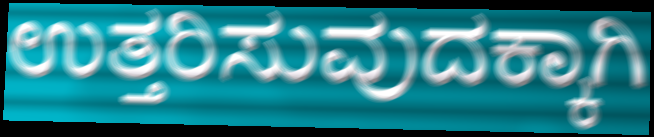
ಉತ್ತರಿಸುವುದಕ್ಕಾಗಿ